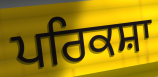
ਪਰਿਕਸ਼ਾ